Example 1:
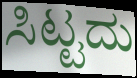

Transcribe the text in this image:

ಸಿಟ್ಟದು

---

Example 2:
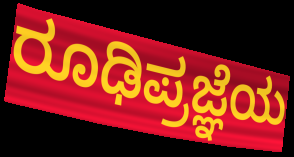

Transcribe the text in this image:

ರೂಢಿಪ್ರಜ್ಞೆಯ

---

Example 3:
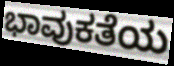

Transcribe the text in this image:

ಭಾವುಕತೆಯ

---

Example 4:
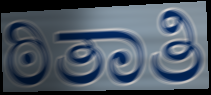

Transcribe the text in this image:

ಠಿತಾತಿ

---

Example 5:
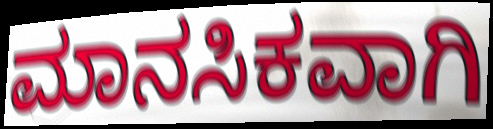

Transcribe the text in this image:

ಮಾನಸಿಕವಾಗಿ